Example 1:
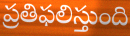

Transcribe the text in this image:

ప్రతిఫలిస్తుంది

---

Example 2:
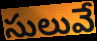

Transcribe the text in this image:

సులువే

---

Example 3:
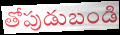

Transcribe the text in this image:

తోపుడుబండి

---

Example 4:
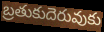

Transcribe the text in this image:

బ్రతుకుదెరువుకు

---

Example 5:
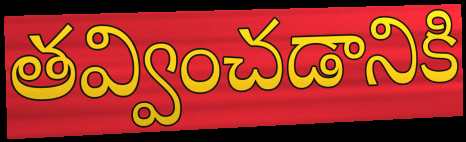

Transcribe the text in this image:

తవ్వించడానికి